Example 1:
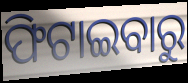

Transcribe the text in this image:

ଫିଟାଇବାରୁ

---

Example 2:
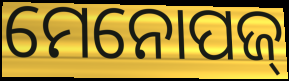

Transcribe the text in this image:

ମେନୋପଜ୍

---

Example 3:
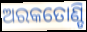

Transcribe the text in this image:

ଅରକତୋଣ୍ଡି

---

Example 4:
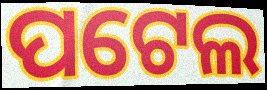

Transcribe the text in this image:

ପଟେଲ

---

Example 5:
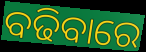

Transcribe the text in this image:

ବଢିବାରେ